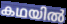
കഥയിൽ